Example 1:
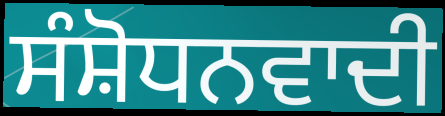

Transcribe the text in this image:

ਸੰਸ਼ੋਧਨਵਾਦੀ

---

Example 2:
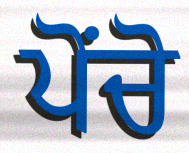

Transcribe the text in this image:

ਪੋਂਚੋ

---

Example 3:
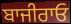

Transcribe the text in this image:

ਬਾਜੀਰਾਓ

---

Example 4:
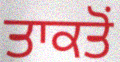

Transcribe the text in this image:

ਤਾਕਤੋਂ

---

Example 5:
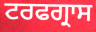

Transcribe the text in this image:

ਟਰਫਗ੍ਰਾਸ